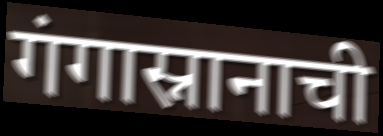
गंगास्नानाची